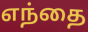
எந்தை